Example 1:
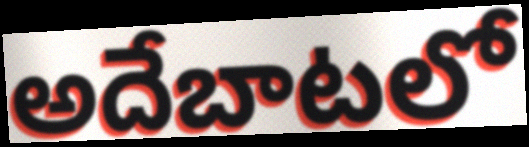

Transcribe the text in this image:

అదేబాటలో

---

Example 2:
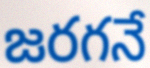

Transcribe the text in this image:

జరగనే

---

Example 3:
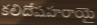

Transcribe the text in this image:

కలిదోషహరాయై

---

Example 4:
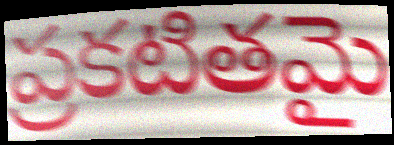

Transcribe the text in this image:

ప్రకటితమై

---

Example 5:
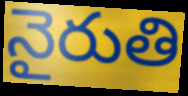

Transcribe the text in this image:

నైరుతి